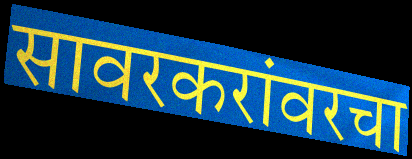
सावरकरांवरचा